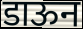
डाऊन